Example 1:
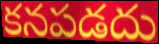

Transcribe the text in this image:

కనపడదు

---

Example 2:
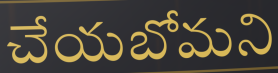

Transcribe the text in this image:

చేయబోమని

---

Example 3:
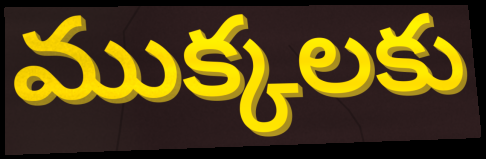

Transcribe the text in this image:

ముక్కలకు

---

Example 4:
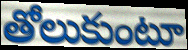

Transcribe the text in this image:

తోలుకుంటూ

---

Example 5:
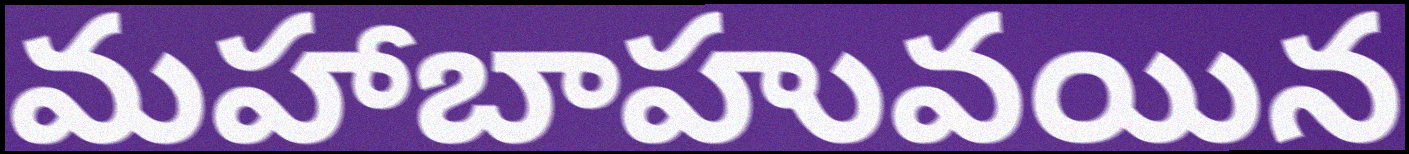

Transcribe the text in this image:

మహాబాహువయిన